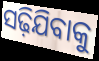
ସଢ଼ିଯିବାକୁ